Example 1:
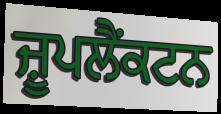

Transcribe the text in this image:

ਜ਼ੂਪਲੈਂਕਟਨ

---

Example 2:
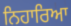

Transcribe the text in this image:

ਨਿਹਾਰਿਆ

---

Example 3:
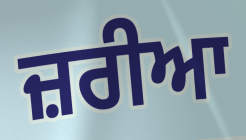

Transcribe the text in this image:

ਜ਼ਰੀਆ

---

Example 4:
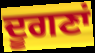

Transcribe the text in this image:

ਦੂਗਣਾਂ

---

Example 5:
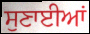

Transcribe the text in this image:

ਸੁਣਾਈਆਂ